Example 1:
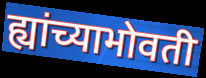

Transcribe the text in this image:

ह्यांच्याभोवती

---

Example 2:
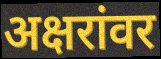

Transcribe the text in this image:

अक्षरांवर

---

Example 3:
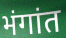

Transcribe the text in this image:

भंगांत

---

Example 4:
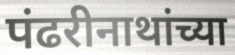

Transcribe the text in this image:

पंढरीनाथांच्या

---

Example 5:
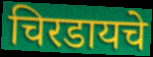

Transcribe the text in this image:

चिरडायचे